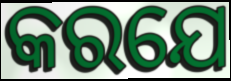
କରଯେ